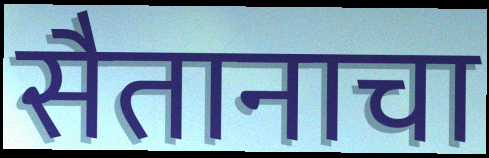
सैतानाचा